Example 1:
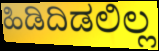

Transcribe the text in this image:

ಹಿಡಿದಿಡಲಿಲ್ಲ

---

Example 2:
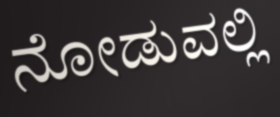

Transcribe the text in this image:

ನೋಡುವಲ್ಲಿ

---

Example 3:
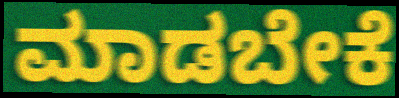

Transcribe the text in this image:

ಮಾಡಬೇಕೆ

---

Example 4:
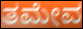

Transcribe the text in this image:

ತಮೇವ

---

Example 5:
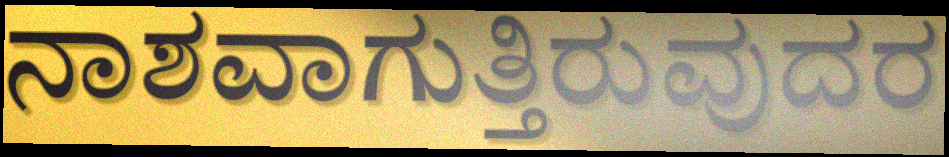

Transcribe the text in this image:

ನಾಶವಾಗುತ್ತಿರುವುದರ